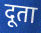
दूता